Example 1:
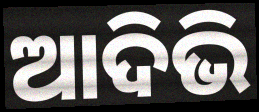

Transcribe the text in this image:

ଆଦିଭି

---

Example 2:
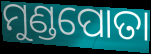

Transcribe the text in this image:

ମୁଣ୍ଡପୋତା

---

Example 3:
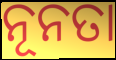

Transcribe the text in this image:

ନୂନତା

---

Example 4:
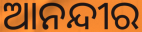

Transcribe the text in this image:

ଆନନ୍ଦୀର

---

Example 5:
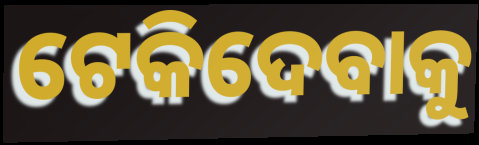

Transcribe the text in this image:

ଟେକିଦେବାକୁ